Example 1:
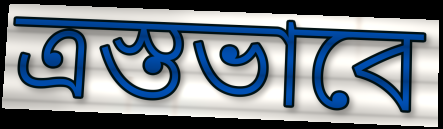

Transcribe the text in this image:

ত্রস্তভাবে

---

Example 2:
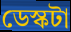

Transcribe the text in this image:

ডেস্কটা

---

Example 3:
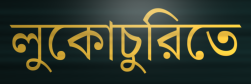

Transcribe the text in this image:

লুকোচুরিতে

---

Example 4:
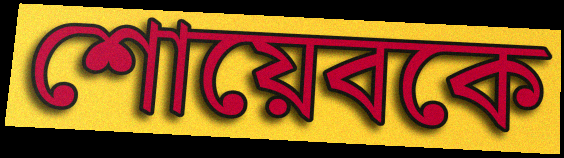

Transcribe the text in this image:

শোয়েবকে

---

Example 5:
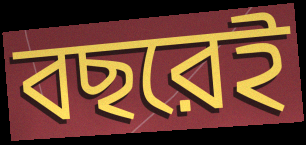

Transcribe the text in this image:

বছরেই